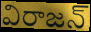
విరాజన్